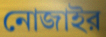
নোজাইর